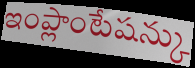
ఇంప్లాంటేషన్కు